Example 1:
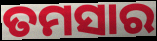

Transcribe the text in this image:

ତମସାର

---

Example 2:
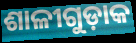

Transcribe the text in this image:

ଶାଳୀଗୁଡ଼ାକ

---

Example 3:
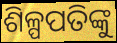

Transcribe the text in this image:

ଶିଳ୍ପପତିଙ୍କୁ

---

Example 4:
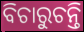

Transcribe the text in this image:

ବିଚାରୁଚନ୍ତି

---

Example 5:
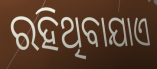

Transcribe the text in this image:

ରହିଥିବାଯାଏ